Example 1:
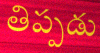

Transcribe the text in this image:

తిప్పడు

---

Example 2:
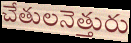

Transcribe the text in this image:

చేతులనెత్తురు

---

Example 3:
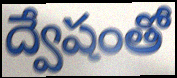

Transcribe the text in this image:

ద్వేషంతో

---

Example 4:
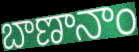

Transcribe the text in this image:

బాణానాం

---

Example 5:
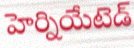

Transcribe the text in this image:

హెర్నియేటెడ్